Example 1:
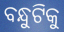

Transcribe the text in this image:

ବନ୍ଧୁଟିକୁ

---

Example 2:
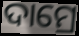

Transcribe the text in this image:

ଦାମ୍ରେ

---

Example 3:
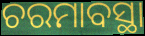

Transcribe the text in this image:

ଚରମାବସ୍ଥା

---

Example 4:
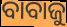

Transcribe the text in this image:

ବାବାଜୁ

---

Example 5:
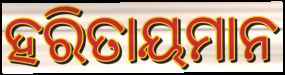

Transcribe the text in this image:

ହରିତାୟମାନ